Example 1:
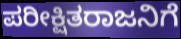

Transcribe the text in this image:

ಪರೀಕ್ಷಿತರಾಜನಿಗೆ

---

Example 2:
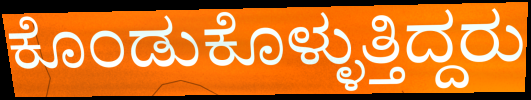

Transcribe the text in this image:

ಕೊಂಡುಕೊಳ್ಳುತ್ತಿದ್ದರು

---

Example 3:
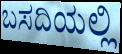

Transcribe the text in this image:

ಬಸದಿಯಲ್ಲಿ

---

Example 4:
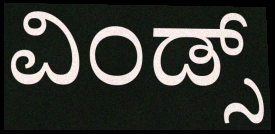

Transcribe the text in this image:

ವಿಂಡ್ಸ್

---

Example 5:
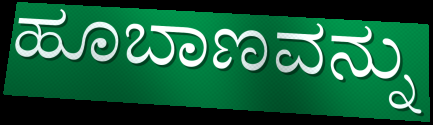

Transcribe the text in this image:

ಹೂಬಾಣವನ್ನು